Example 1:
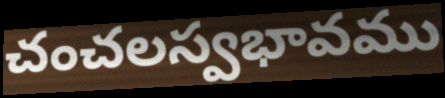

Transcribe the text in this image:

చంచలస్వభావము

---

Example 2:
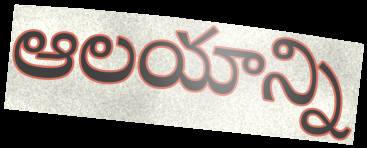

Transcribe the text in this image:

ఆలయాన్ని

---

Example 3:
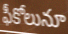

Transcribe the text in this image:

ఫీకోలునూ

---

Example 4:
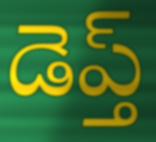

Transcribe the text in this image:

డెప్త్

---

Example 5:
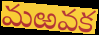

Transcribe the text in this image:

మఱవక